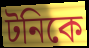
টনিকে